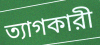
ত্যাগকারী